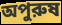
অপুরুষ